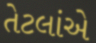
તેટલાંએ